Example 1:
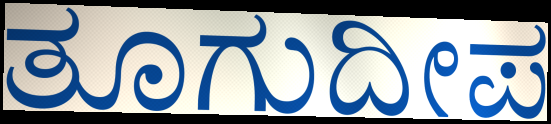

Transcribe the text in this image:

ತೂಗುದೀಪ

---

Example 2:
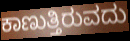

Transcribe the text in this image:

ಕಾಣುತ್ತಿರುವದು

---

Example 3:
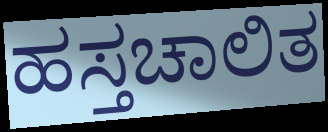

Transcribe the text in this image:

ಹಸ್ತಚಾಲಿತ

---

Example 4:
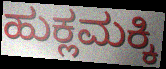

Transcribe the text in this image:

ಹುಕ್ಲಮಕ್ಕಿ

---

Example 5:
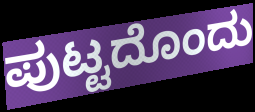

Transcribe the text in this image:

ಪುಟ್ಟದೊಂದು